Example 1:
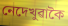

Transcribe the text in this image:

নেদেখুৱাকৈ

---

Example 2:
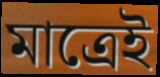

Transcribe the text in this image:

মাত্ৰেই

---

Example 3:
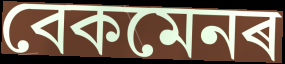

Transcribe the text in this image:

বেকমেনৰ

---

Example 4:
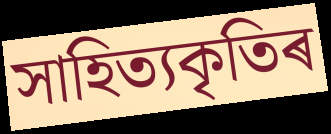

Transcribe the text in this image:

সাহিত্যকৃতিৰ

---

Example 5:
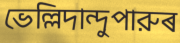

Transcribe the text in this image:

ভেল্লিদান্দুপাৰুৰ